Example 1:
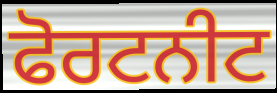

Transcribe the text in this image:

ਫੋਰਟਨੀਟ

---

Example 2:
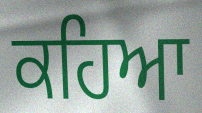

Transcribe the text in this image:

ਕਹਿਆ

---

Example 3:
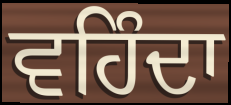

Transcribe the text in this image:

ਵਹਿੰਦਾ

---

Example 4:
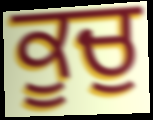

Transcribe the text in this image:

ਕੂਚੁ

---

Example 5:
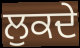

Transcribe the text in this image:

ਲੁਕਦੇ